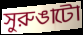
সুৰুঙাটো